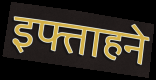
इफ्ताहने